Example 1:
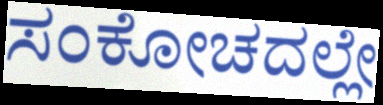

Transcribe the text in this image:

ಸಂಕೋಚದಲ್ಲೇ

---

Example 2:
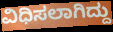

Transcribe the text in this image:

ವಿಧಿಸಲಾಗಿದ್ದು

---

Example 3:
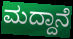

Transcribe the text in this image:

ಮದ್ದಾನೆ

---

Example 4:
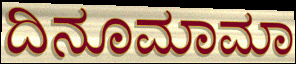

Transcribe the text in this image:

ದಿನೂಮಾಮಾ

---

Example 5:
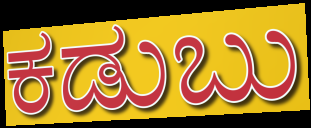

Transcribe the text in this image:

ಕಡುಬು